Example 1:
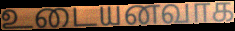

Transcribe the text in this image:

உடையனவாக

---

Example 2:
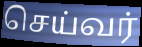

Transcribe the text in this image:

செய்வர்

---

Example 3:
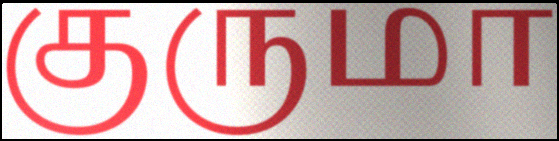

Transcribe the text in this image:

குருமா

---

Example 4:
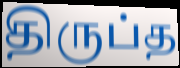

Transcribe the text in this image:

திருப்த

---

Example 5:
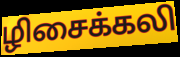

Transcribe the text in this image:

ழிசைக்கலி